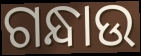
ଗନ୍ଧାଉ